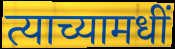
त्याच्यामधीं